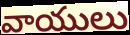
వాయులు